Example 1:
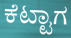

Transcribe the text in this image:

ಕೆಟ್ಟಾಗ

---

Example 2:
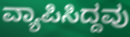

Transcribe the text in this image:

ವ್ಯಾಪಿಸಿದ್ದವು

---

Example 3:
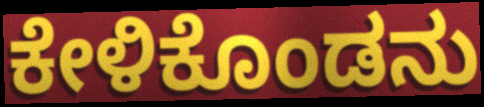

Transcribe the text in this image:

ಕೇಳಿಕೊಂಡನು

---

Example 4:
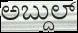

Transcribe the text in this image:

ಅಬ್ದುಲ್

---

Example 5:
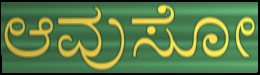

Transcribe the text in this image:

ಆವುಸೋ